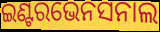
ଇଣ୍ଟରଭେନସନାଲ